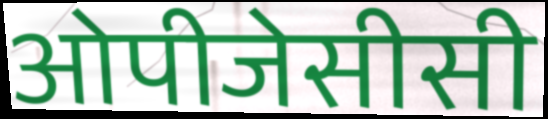
ओपीजेसीसी